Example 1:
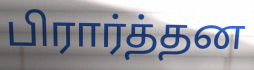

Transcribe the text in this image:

பிரார்த்தன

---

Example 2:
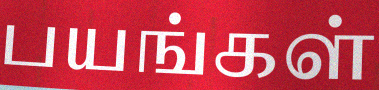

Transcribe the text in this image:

பயங்கள்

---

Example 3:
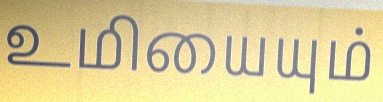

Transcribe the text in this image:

உமியையும்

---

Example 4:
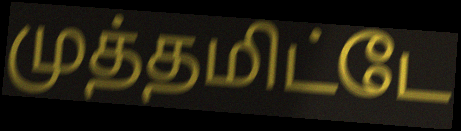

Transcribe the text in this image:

முத்தமிட்டே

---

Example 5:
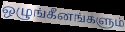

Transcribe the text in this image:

ஒழுங்கீனங்களும்